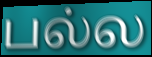
பல்ல